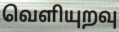
வெளியுறவு